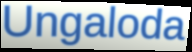
Ungaloda